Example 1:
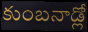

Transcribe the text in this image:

కుంబనాడ్లో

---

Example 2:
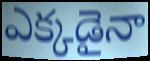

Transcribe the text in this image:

ఎక్కడైనా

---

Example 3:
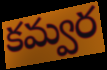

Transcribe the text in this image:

కమ్వర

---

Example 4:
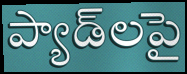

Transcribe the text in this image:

ప్యాడ్‌లపై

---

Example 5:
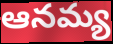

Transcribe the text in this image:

ఆనమ్య